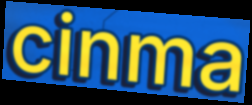
cinma